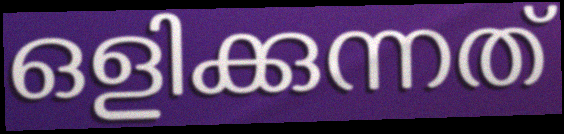
ഒളിക്കുന്നത്